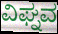
ವಿಘ್ನವ